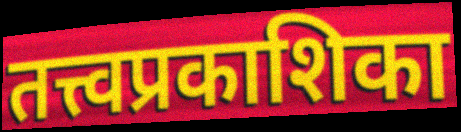
तत्त्वप्रकाशिका